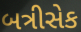
બત્રીસેક